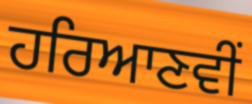
ਹਰਿਆਣਵੀਂ